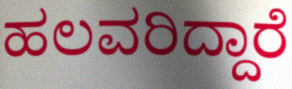
ಹಲವರಿದ್ದಾರೆ